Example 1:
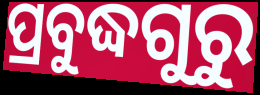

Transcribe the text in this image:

ପ୍ରବୁଦ୍ଧଗୁରୁ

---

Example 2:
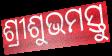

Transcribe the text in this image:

ଶ୍ରୀଶୁଭମସ୍ତୁ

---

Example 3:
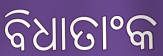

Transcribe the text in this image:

ବିଧାତାଂକ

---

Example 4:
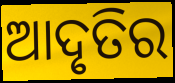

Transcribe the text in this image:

ଆଦୃତିର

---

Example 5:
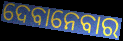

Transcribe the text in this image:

ଦେବାନେବାର